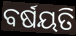
ବର୍ଷୟତି